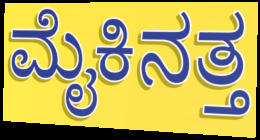
ಮೈಕಿನತ್ತ